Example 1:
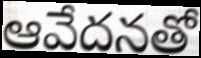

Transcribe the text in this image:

ఆవేదనతో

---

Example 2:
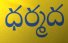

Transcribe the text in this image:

ధర్మద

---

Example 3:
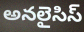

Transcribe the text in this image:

అనలైసిస్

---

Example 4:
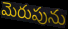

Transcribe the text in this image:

మెరుపును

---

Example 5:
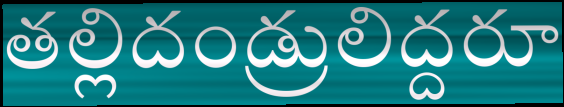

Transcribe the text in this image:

తల్లిదండ్రులిద్దరూ